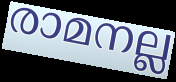
രാമനല്ല